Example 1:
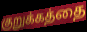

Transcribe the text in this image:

குறுக்கத்தை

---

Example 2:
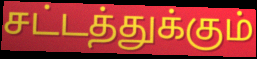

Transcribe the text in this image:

சட்டத்துக்கும்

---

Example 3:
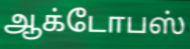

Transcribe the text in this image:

ஆக்டோபஸ்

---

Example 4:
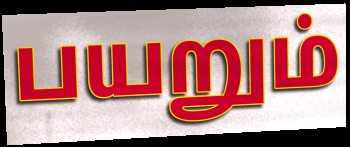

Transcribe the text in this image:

பயறும்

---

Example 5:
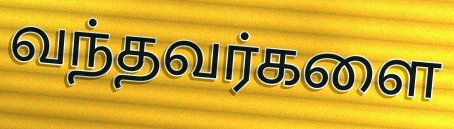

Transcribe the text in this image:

வந்தவர்களை